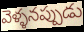
వెళ్ళనప్పుడు